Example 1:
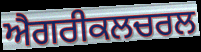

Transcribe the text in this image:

ਐਗਰੀਕਲਚਰਲ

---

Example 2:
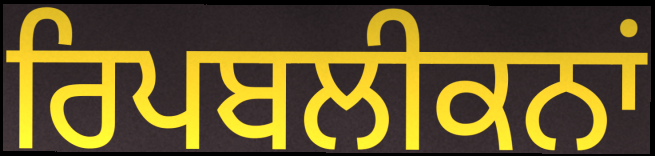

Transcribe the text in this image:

ਰਿਪਬਲੀਕਨਾਂ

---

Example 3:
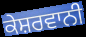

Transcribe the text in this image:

ਕੇਸ਼ਰਵਾਨੀ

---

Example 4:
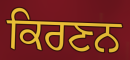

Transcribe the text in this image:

ਕਿਰਣਨ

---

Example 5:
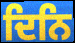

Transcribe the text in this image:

ਦਿਨਿ